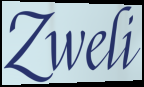
Zweli